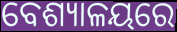
ବେଶ୍ୟାଳୟରେ